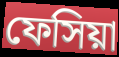
ফেসিয়া